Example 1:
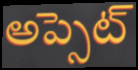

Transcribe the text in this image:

అప్సెట్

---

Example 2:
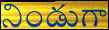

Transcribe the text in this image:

నిండుగా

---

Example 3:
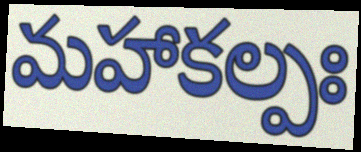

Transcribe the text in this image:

మహాకల్పః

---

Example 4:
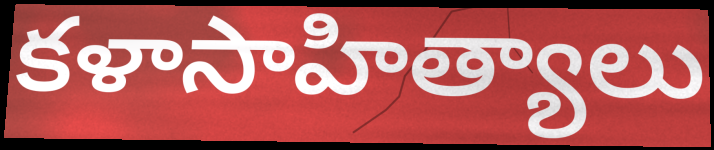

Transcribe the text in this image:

కళాసాహిత్యాలు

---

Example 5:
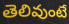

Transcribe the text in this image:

తెలివుంటే